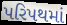
પરિપથમાં